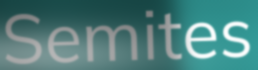
Semites